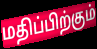
மதிப்பிற்கும்